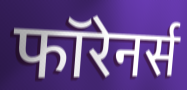
फॉरेनर्स